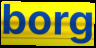
borg